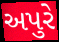
અપુરે